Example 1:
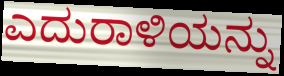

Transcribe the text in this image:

ಎದುರಾಳಿಯನ್ನು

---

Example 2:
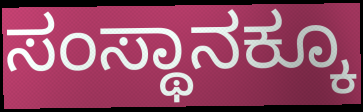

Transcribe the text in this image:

ಸಂಸ್ಥಾನಕ್ಕೂ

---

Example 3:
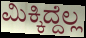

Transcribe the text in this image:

ಮಿಕ್ಕಿದ್ದೆಲ್ಲ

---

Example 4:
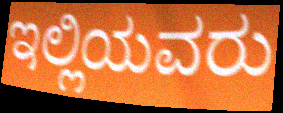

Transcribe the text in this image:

ಇಲ್ಲಿಯವರು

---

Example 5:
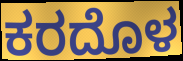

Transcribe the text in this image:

ಕರದೊಳ